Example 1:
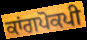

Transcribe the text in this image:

ਕਾਂਗਪੋਕਪੀ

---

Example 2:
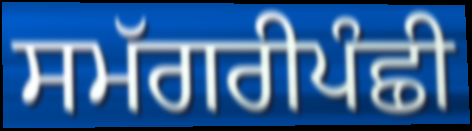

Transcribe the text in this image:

ਸਮੱਗਰੀਪੰਛੀ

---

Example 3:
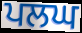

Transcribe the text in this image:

ਪਲਘ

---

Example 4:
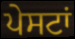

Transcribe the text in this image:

ਪੇਸਟਾਂ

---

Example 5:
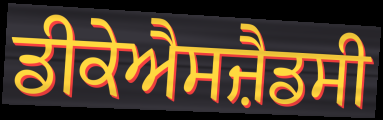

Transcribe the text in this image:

ਡੀਕੇਐਸਜ਼ੈਡਸੀ